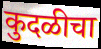
कुदळीचा